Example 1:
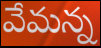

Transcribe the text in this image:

వేమన్న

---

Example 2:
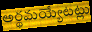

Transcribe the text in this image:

అర్థమయ్యేటట్లు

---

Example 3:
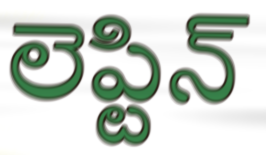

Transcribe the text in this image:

లెప్టిన్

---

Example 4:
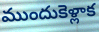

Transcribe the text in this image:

ముందుకెళ్లాక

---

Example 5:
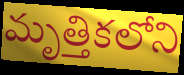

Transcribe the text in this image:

మృత్తికలోని